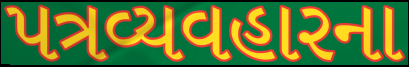
પત્રવ્યવહારના